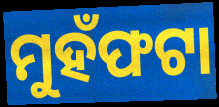
ମୁହଁଫଟା